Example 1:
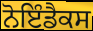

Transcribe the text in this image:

ਨੋਇੰਡੈਕਸ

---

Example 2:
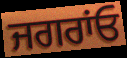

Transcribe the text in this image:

ਜਗਰਾਂਓ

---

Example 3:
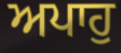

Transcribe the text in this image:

ਅਪਾਹੁ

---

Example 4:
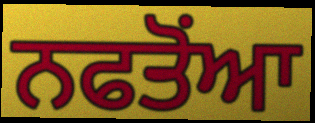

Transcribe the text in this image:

ਨਫਤੋਂਆ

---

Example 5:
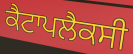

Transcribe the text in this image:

ਕੈਟਾਪਲੈਕਸੀ